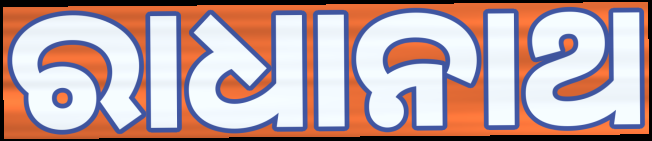
ରାଧାନାଥ